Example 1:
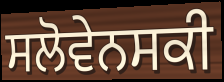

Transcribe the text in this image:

ਸਲੋਵੇਨਸਕੀ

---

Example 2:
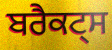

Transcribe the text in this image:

ਬਰੈਕਟ੍ਸ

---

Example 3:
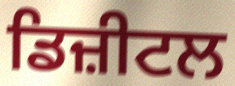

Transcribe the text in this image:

ਡਿਜ਼ੀਟਲ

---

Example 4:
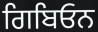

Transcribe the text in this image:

ਗਿਬਿਓਨ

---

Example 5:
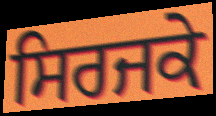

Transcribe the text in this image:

ਸਿਰਜਕੇ